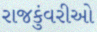
રાજકુંવરીઓ